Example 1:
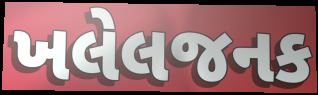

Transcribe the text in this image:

ખલેલજનક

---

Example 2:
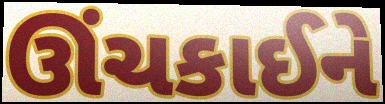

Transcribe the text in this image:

ઊંચકાઈને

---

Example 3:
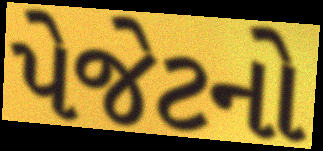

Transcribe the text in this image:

પેજેટનો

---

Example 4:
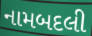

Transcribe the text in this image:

નામબદલી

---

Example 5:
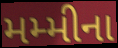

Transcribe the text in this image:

મમ્મીના